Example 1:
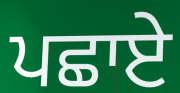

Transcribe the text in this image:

ਪਛਾਏ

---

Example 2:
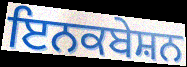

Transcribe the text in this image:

ਇਨਕਬੇਸ਼ਨ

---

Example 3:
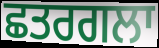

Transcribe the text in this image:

ਛਤਰਗਲਾ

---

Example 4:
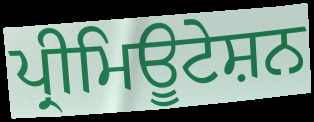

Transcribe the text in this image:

ਪ੍ਰੀਮਿਊਟੇਸ਼ਨ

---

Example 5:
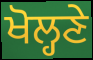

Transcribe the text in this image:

ਖੋਲ੍ਹਣੇ